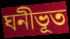
ঘনীভূত